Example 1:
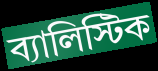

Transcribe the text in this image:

ব্যালিস্টিক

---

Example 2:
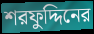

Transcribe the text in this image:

শরফুদ্দিনের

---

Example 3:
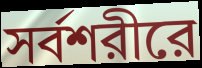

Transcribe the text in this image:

সর্বশরীরে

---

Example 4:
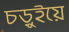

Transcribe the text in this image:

চড়ুইয়ে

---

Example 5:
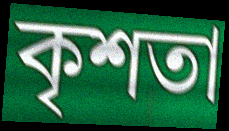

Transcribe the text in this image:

কৃশতা